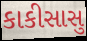
કાકીસાસુ